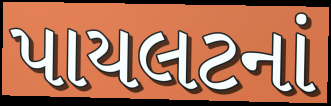
પાયલટનાં